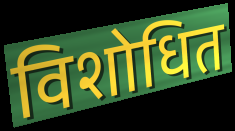
विशोधित